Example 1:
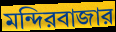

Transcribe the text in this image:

মন্দিরবাজার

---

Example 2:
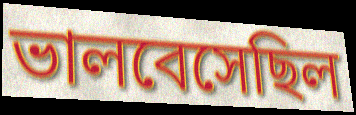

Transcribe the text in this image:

ভালবেসেছিল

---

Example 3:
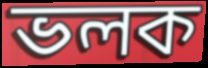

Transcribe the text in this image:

ভলক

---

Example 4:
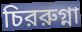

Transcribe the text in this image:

চিররুগ্না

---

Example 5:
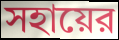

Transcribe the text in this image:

সহায়ের